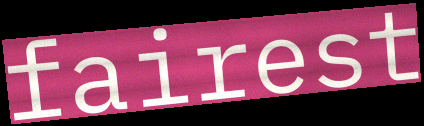
fairest